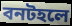
বনটহলে